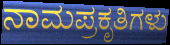
ನಾಮಪ್ರಕೃತಿಗಳು